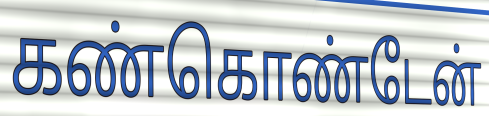
கண்கொண்டேன்